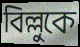
বিল্লুকে